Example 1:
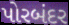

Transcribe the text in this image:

પોરબંદર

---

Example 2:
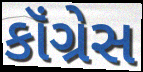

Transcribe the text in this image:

કૉંગ્રેસ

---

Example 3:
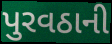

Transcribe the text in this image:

પુરવઠાની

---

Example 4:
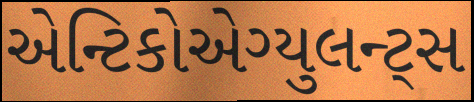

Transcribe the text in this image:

એન્ટિકોએગ્યુલન્ટ્સ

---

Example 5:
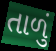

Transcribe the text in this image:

તાળું